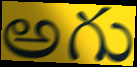
అగు